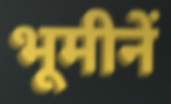
भूमीनें